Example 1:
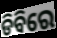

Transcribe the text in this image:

ଡିବିରେ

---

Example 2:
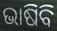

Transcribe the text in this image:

ଭାଷିବି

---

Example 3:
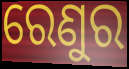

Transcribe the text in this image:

ରେଣୁର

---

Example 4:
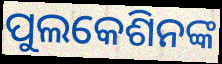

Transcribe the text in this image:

ପୁଲକେଶିନଙ୍କ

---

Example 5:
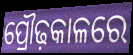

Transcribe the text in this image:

ପ୍ରୌଢ଼କାଳରେ